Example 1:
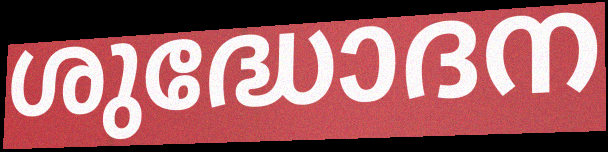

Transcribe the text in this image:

ശുദ്ധോദന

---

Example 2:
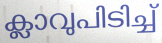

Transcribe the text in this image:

ക്ലാവുപിടിച്ച്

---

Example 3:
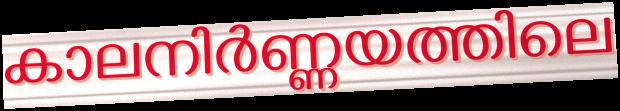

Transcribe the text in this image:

കാലനിർണ്ണയത്തിലെ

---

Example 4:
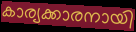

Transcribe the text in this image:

കാര്യക്കാരനായി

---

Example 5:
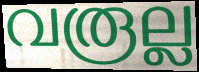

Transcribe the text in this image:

വരൂല്ല